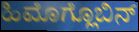
ಹಿಮೊಗ್ಲೊಬಿನ್